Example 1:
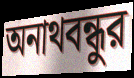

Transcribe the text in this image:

অনাথবন্ধুর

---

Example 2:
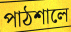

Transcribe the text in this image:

পাঠশালে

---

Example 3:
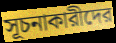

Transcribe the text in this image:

সূচনাকারীদের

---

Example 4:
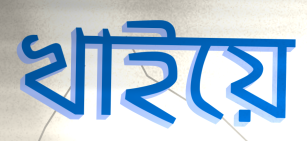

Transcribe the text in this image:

খাইয়ে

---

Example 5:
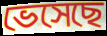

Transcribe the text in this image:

ভেসেছে